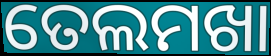
ତେଲମଖା